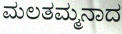
ಮಲತಮ್ಮನಾದ